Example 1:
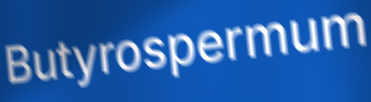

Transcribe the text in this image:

Butyrospermum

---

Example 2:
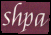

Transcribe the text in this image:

shpa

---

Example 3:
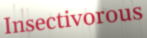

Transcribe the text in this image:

Insectivorous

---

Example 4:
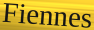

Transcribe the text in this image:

Fiennes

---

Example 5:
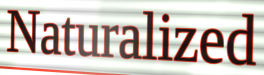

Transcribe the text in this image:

Naturalized